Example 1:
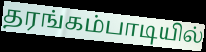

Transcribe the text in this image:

தரங்கம்பாடியில்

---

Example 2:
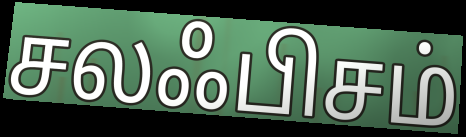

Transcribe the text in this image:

சலஃபிசம்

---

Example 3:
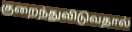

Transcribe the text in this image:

குறைந்துவிடுவதால்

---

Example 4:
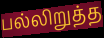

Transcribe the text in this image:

பல்லிறுத்த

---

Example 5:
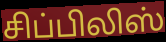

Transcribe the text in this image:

சிப்பிலிஸ்